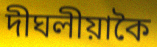
দীঘলীয়াকৈ